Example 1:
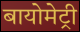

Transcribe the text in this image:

बायोमेट्री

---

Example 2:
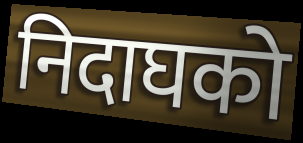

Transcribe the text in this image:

निदाघको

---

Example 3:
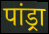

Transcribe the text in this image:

पांड्रा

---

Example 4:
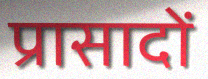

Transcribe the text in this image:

प्रासादों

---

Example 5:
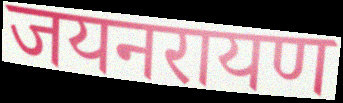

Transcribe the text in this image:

जयनरायण